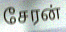
சேரன்